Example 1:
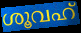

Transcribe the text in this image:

ശൂവഹ്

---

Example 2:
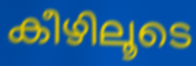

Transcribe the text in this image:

കീഴിലൂടെ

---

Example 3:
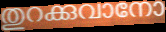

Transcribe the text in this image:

തുറക്കുവാനോ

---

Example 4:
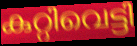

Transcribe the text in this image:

കുറ്റിവെട്ടി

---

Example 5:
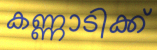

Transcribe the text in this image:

കണ്ണാടിക്ക്